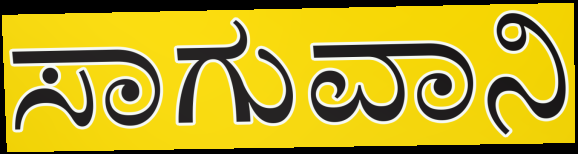
ಸಾಗುವಾನಿ